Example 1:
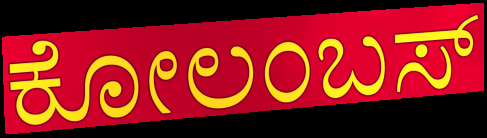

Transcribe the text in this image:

ಕೋಲಂಬಸ್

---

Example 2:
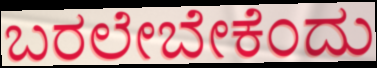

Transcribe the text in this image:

ಬರಲೇಬೇಕೆಂದು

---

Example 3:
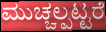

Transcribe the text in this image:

ಮುಚ್ಚಲ್ಪಟ್ಟರೆ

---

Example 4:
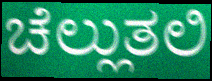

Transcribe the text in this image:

ಚೆಲ್ಲುತಲಿ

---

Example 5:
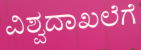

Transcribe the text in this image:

ವಿಶ್ವದಾಖಲೆಗೆ